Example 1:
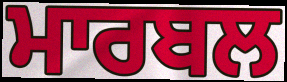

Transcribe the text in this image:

ਮਾਰਬਲ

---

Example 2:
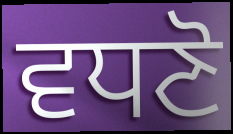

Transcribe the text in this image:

ਵਧਣੋ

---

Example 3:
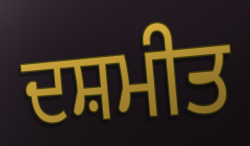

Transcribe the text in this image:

ਦਸ਼ਮੀਤ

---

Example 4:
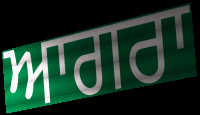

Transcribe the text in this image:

ਆਗਰਾ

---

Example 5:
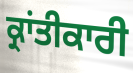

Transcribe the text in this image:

ਕ੍ਰਾਂਤੀਕਾਰੀ